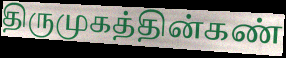
திருமுகத்தின்கண்